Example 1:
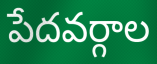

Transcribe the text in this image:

పేదవర్గాల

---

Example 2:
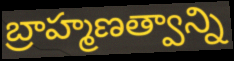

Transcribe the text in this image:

బ్రాహ్మణత్వాన్ని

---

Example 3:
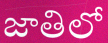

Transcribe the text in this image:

జాతిలో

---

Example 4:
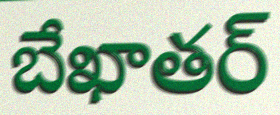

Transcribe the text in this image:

బేఖాతర్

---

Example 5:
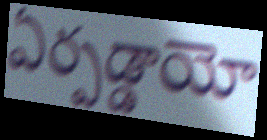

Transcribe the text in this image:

ఏర్పడ్డాయో